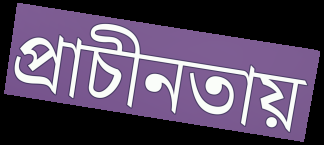
প্রাচীনতায়